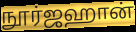
நூர்ஜஹான்